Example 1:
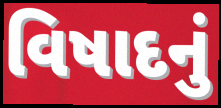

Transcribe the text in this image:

વિષાદનું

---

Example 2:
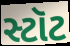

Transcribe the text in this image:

સ્ટૉટ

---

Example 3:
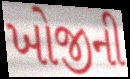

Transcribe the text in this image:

ખોજીની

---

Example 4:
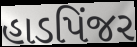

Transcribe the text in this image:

હાડપિંજર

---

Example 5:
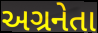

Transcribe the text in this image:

અગ્રનેતા